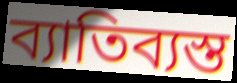
ব্যাতিব্যস্ত